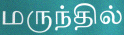
மருந்தில்